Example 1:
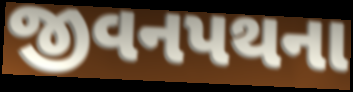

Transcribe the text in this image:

જીવનપથના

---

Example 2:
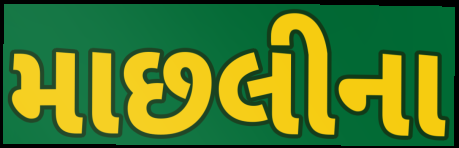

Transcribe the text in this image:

માછલીના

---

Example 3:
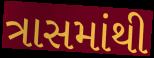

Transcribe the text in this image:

ત્રાસમાંથી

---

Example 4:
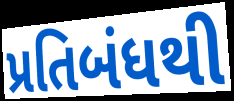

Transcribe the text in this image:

પ્રતિબંધથી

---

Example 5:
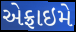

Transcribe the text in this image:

એફ્રાઇમે